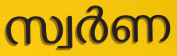
സ്വർണ